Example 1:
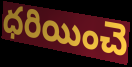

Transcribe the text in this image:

ధరియించె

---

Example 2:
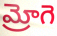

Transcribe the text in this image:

మ్రోగె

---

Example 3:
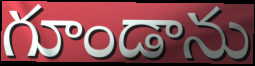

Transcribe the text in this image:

గూండాను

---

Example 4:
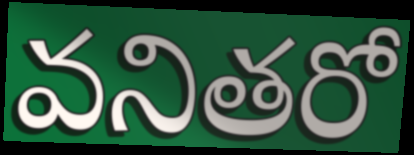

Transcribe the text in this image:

వనితరో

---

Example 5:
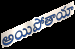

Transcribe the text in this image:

అయిపోతాయా